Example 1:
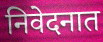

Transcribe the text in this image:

निवेदनात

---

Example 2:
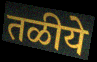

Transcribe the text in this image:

तळीये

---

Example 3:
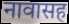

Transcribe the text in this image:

नावासह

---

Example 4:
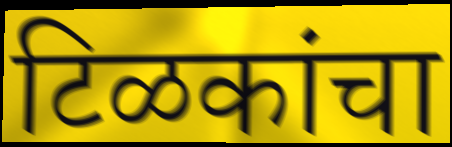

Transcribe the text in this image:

टिळकांचा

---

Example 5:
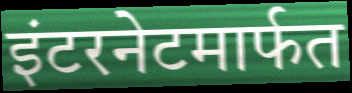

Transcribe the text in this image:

इंटरनेटमार्फत